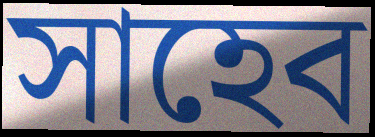
সাহেব